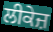
ਲੀਕੇਜ਼